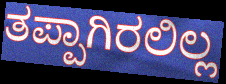
ತಪ್ಪಾಗಿರಲಿಲ್ಲ